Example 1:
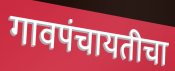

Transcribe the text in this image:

गावपंचायतीचा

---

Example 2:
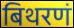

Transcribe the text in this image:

बिथरणं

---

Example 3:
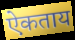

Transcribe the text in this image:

ऐकताय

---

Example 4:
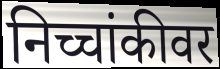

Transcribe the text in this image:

निच्चांकीवर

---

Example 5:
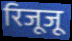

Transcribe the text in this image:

रिजूजू